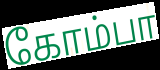
கோம்பா